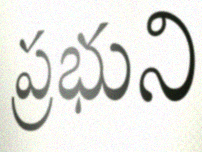
ప్రభుని